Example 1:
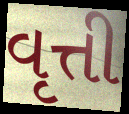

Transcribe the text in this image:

વૃત્તી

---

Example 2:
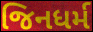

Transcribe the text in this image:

જિનધર્મ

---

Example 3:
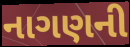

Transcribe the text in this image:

નાગણની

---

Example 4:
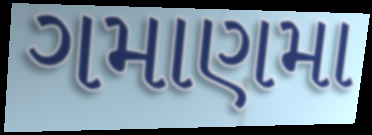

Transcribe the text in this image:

ગમાણમા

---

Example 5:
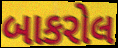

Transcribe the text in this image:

બાકરોલ